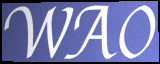
WAO